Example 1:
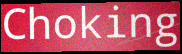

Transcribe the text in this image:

Choking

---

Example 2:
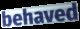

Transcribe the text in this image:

behaved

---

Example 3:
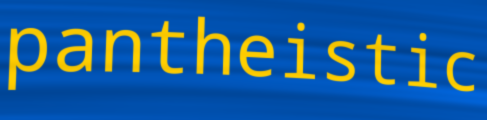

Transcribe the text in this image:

pantheistic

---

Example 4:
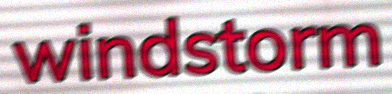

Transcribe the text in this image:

windstorm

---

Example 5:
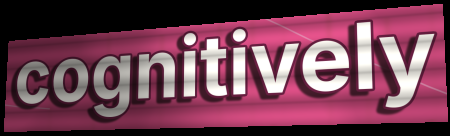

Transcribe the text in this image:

cognitively